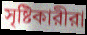
সৃষ্টিকারীরা